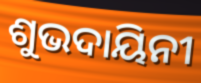
ଶୁଭଦାୟିନୀ